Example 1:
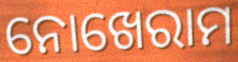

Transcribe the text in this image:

ନୋଖେରାମ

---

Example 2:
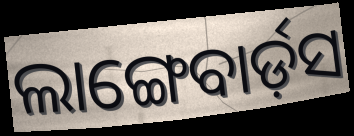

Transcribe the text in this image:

ଲାଙ୍ଗେବାର୍ଡ଼ସ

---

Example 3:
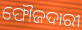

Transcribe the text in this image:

ଫୌଜଦାରୀ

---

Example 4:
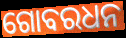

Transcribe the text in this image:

ଗୋବରଧନ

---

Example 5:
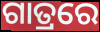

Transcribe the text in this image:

ଗାତ୍ରରେ